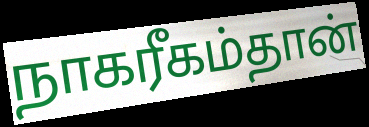
நாகரீகம்தான்